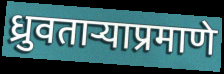
ध्रुवताऱ्याप्रमाणे